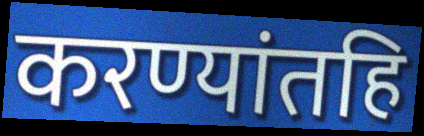
करण्यांतहि